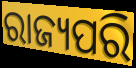
ରାଜ୍ୟପରି